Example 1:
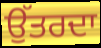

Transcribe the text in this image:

ਉੱਤਰਦਾ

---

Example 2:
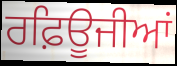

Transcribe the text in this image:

ਰਫ਼ਿਊਜੀਆਂ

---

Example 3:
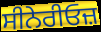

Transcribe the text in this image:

ਸੀਨੇਰੀਓਜ਼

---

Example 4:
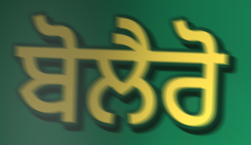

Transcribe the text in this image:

ਬੋਲੈਰੋ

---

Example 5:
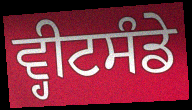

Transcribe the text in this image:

ਵ੍ਹੀਟਸੰਡੇ